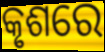
କୃଶରେ